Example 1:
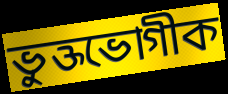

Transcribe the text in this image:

ভুক্তভোগীক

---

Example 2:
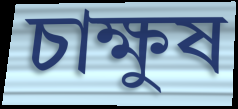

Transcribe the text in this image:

চাক্ষুষ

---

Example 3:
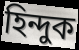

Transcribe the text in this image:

হিন্দুক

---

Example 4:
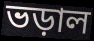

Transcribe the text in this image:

ভড়াল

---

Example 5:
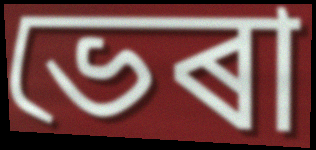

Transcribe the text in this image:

ভেৰা